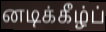
னடிக்கீழ்ப்